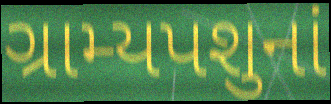
ગ્રામ્યપશુનાં